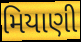
મિયાણી